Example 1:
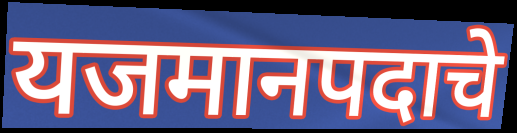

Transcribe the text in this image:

यजमानपदाचे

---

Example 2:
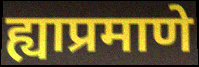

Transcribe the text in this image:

ह्याप्रमाणे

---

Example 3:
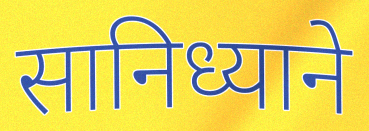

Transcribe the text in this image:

सानिध्याने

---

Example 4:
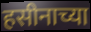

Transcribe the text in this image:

हसीनाच्या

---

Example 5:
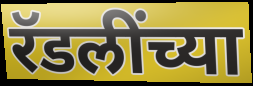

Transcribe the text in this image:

रॅडलींच्या